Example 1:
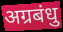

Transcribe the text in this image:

अग्रबंधु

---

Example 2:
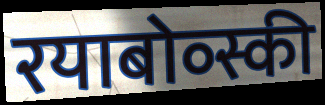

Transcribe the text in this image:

रयाबोव्स्की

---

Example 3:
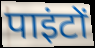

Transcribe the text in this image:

पाइंटों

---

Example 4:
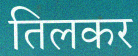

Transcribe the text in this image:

तिलकर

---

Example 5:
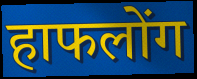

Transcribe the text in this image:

हाफलोंग